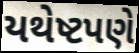
યથેષ્ટપણે